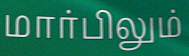
மார்பிலும்